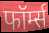
फॉर्म्स